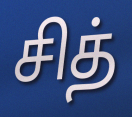
சித்